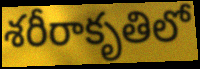
శరీరాకృతిలో